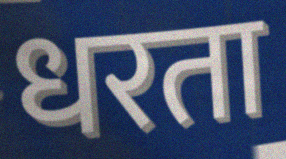
धरता